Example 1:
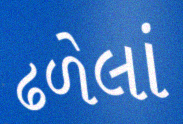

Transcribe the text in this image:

ઢળેલાં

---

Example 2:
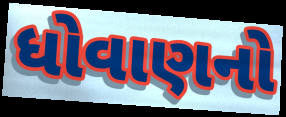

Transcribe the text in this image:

ધોવાણનો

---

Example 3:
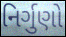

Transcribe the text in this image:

નિર્ગુણો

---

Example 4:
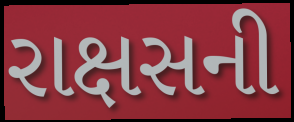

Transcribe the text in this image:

રાક્ષસની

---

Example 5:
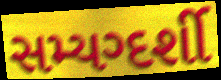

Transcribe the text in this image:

સમ્યગ્દર્શી